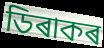
ডিৰাকৰ